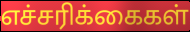
எச்சரிக்கைகள்